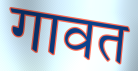
गावत